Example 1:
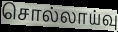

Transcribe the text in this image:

சொல்லாய்வு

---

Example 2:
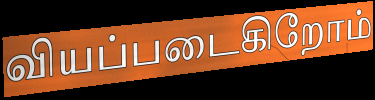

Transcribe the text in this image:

வியப்படைகிறோம்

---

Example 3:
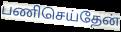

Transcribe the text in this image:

பணிசெய்தேன்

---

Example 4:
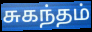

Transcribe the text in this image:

சுகந்தம்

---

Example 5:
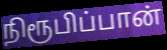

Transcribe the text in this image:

நிரூபிப்பான்